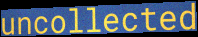
uncollected